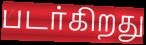
படர்கிறது